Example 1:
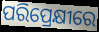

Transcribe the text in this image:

ପରିପ୍ରେକ୍ଷୀରେ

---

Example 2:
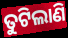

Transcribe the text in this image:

ତୁଟିଲାଣି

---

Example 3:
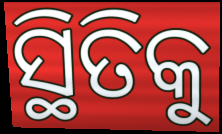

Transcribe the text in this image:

ସ୍ଥିତିକୁ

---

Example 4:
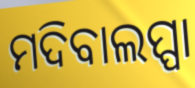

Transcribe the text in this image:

ମଦିବାଲପ୍ପା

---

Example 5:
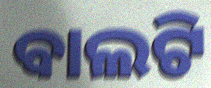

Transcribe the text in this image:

ବାଲଟି